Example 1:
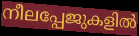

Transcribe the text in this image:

നീലപ്പേജുകളിൽ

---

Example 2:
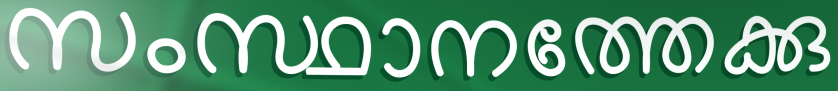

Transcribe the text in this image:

സംസ്ഥാനത്തേക്കു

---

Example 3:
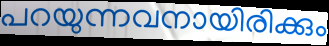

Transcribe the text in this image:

പറയുന്നവനായിരിക്കും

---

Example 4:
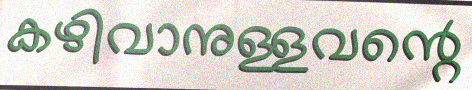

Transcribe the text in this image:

കഴിവാനുള്ളവന്റെ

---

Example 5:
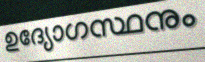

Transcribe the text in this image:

ഉദ്യോഗസ്ഥനും